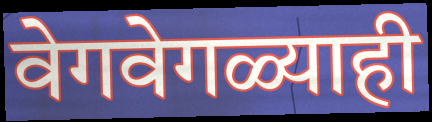
वेगवेगळ्याही